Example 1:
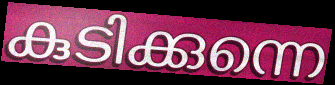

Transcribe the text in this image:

കുടിക്കുന്നെ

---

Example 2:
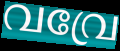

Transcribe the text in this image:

വവ്രേ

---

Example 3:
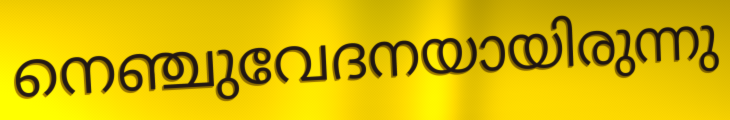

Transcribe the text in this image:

നെഞ്ചുവേദനയായിരുന്നു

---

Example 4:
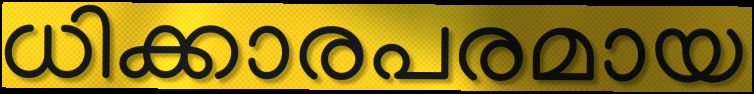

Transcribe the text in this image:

ധിക്കാരപരമായ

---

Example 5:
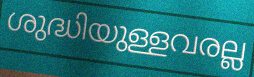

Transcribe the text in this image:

ശുദ്ധിയുള്ളവരല്ല